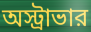
অস্ট্রাভার